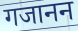
गजानन